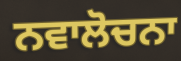
ਨਵਾਲੋਚਨਾ